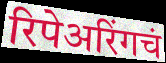
रिपेअरिंगचं